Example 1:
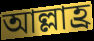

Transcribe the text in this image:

আল্লাহ্র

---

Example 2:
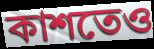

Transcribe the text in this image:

কাশতেও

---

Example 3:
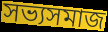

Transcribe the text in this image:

সভ্যসমাজ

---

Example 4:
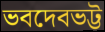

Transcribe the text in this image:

ভবদেবভট্ট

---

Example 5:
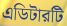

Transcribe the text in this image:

এডিটারটি